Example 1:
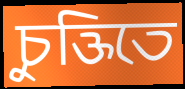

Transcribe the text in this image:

চুক্তিতে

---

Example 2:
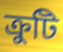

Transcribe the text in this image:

ক্ৰুটি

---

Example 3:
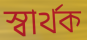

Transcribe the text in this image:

স্বাৰ্থক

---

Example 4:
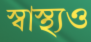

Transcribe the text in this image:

স্বাস্থ্যও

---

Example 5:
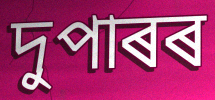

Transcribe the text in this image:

দুপাৰৰ